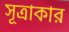
সূত্রাকার